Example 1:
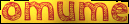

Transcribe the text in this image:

omume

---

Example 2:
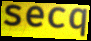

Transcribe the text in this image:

secq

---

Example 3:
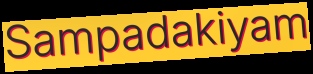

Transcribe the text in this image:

Sampadakiyam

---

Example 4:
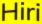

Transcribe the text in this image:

Hiri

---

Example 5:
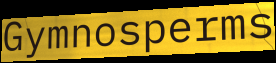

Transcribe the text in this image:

Gymnosperms